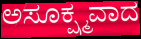
ಅಸೂಕ್ಷ್ಮವಾದ